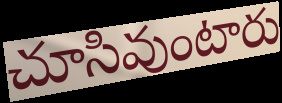
చూసివుంటారు